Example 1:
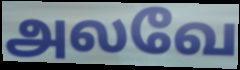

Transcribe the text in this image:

அலவே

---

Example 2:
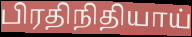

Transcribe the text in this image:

பிரதிநிதியாய்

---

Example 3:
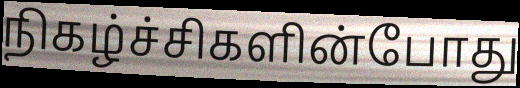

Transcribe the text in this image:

நிகழ்ச்சிகளின்போது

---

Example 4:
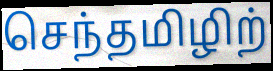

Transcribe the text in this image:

செந்தமிழிற்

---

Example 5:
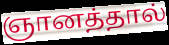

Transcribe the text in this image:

ஞானத்தால்